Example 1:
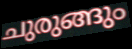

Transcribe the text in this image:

ചുരുങ്ങും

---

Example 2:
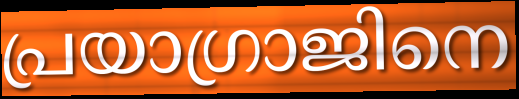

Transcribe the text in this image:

പ്രയാഗ്രാജിനെ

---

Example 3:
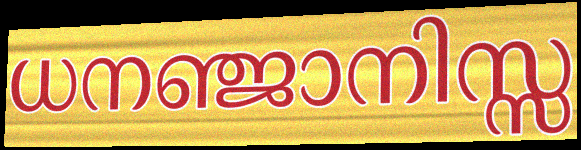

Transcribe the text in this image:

ധനഞ്ജാനിസ്സ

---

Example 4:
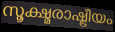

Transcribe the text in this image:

സൂക്ഷ്മരാഷ്ട്രീയം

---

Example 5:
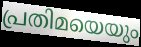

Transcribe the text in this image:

പ്രതിമയെയും